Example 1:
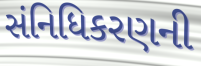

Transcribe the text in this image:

સંનિધિકરણની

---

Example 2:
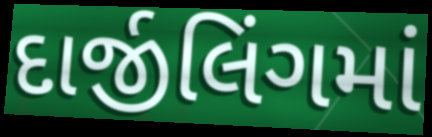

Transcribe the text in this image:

દાર્જીલિંગમાં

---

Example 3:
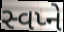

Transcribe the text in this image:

સ્વપ્ને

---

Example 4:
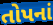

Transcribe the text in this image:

તોપનાં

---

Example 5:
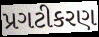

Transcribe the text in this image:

પ્રગટીકરણ